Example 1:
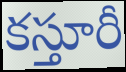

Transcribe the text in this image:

కస్తూరీ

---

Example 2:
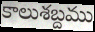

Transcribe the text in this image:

కాలుశబ్దము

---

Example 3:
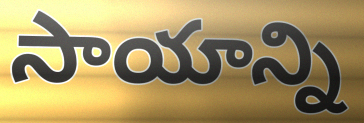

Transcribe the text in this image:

సాయాన్ని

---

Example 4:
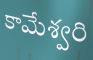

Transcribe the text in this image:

కామేశ్వరి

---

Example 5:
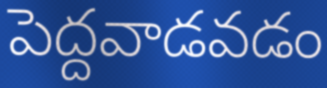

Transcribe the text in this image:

పెద్దవాడవడం